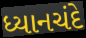
ધ્યાનચંદે